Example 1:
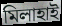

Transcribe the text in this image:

মিলাহাই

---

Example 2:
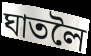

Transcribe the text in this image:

ঘাতলৈ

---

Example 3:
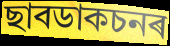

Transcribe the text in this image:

ছাবডাকচনৰ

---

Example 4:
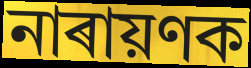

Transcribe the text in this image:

নাৰায়ণক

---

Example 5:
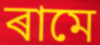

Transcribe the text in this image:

ৰামে